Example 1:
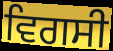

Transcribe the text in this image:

ਵਿਗਸੀ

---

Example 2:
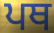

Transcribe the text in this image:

ਪਥ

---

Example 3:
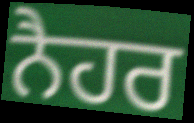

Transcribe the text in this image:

ਨੈਹਰ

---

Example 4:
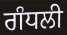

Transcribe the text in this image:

ਗੰਧਲੀ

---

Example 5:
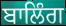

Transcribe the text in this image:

ਬਾਲਿੰਗ